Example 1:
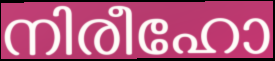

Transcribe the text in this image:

നിരീഹോ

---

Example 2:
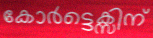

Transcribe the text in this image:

കോർട്ടെക്സിന്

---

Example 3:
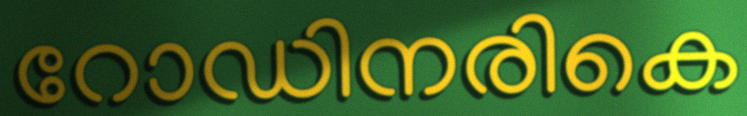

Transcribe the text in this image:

റോഡിനരികെ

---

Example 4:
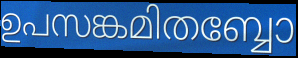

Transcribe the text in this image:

ഉപസങ്കമിതബ്ബോ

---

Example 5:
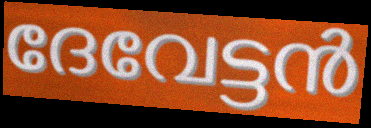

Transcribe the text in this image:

ദേവേട്ടൻ